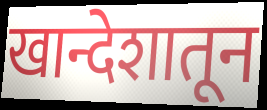
खान्देशातून